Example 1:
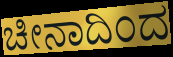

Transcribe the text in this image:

ಚೀನಾದಿಂದ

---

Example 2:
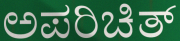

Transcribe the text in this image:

ಅಪರಿಚಿತ್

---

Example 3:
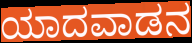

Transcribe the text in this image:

ಯಾದವಾಡನ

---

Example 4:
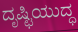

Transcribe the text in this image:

ದೃಷ್ಟಿಯುದ್ಧ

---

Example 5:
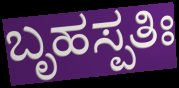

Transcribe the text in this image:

ಬೃಹಸ್ಪತಿಃ